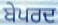
ਬੇਪਰਦ